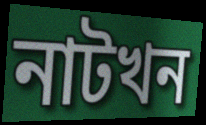
নাটখন